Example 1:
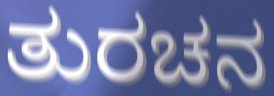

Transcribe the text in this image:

ತುರಚನ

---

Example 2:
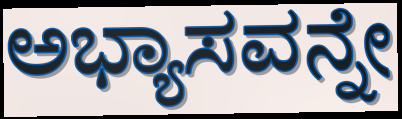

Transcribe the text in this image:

ಅಭ್ಯಾಸವನ್ನೇ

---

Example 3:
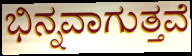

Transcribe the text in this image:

ಭಿನ್ನವಾಗುತ್ತವೆ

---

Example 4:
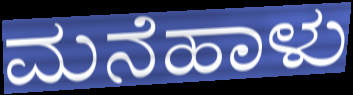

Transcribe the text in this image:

ಮನೆಹಾಳು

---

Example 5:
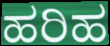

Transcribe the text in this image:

ಹರಿಹ